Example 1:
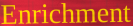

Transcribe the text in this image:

Enrichment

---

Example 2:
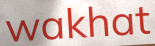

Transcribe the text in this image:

wakhat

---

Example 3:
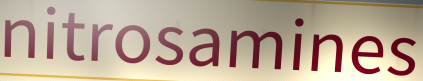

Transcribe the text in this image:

nitrosamines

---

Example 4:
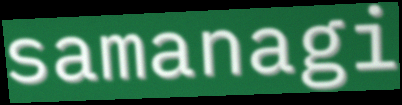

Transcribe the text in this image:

samanagi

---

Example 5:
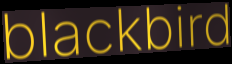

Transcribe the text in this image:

blackbird